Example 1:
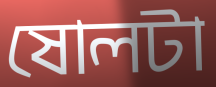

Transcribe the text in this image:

ষোলটা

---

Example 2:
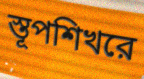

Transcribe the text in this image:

স্তূপশিখরে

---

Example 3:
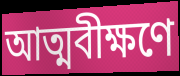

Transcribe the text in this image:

আত্মবীক্ষণে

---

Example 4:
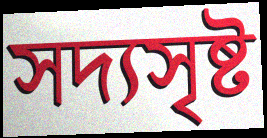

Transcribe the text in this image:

সদ্যসৃষ্ট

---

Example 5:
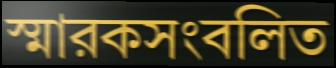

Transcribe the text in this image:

স্মারকসংবলিত